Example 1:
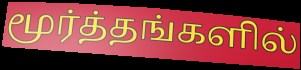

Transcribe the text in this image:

மூர்த்தங்களில்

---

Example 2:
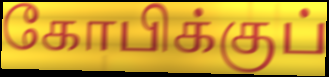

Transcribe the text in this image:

கோபிக்குப்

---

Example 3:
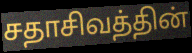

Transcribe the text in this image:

சதாசிவத்தின்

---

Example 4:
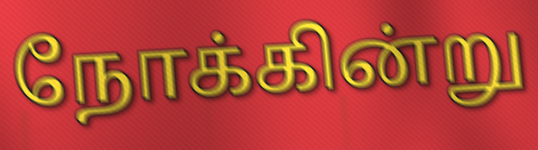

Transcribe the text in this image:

நோக்கின்று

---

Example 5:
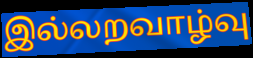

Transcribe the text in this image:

இல்லறவாழ்வு